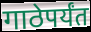
गाठेपर्यंत